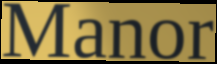
Manor